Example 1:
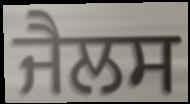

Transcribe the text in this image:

ਜੈਲਸ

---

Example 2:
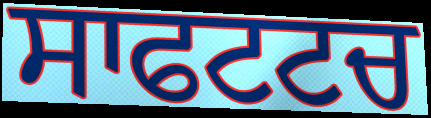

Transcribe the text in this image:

ਸਾਫਟਟਚ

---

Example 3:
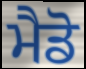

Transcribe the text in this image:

ਮੈਡੋ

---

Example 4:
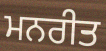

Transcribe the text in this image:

ਮਨਰੀਤ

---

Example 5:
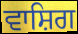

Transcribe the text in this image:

ਵਾਸ਼ਿਗ